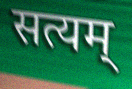
सत्यम्